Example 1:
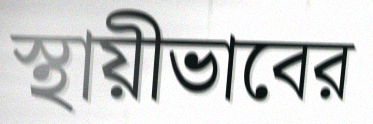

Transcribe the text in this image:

স্থায়ীভাবের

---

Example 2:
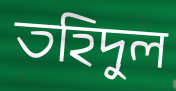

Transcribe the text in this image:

তহিদুল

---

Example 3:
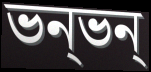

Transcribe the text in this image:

ভন্ভন্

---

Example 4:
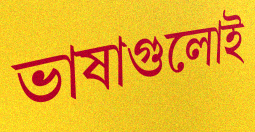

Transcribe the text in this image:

ভাষাগুলোই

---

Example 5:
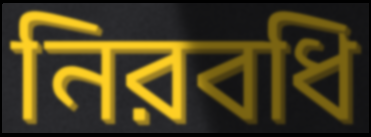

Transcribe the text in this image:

নিরবধি